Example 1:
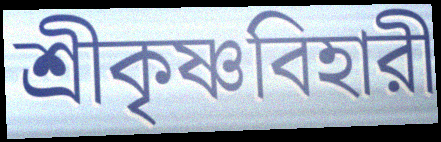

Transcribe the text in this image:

শ্রীকৃষ্ণবিহারী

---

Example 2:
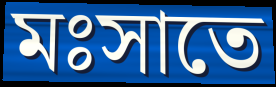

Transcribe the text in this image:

মঃসাতে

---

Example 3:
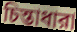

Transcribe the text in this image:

চিন্তাধারা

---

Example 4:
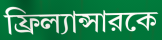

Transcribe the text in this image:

ফ্রিল্যান্সারকে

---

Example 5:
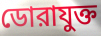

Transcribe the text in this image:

ডোরাযুক্ত